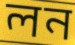
লন